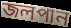
জলপান